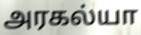
அரகல்யா